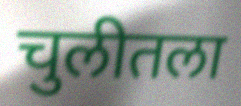
चुलीतला